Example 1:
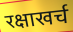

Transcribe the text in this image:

रक्षाखर्च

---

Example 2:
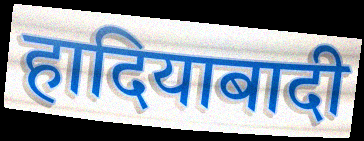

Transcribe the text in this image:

हादियाबादी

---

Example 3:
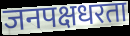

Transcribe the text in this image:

जनपक्षधरता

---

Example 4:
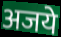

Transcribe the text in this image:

अजये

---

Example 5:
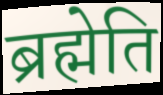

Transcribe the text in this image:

ब्रह्मेति